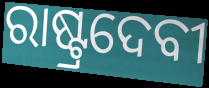
ରାଷ୍ଟ୍ରଦେବୀ